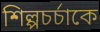
শিল্পচর্চাকে